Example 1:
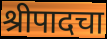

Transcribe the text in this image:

श्रीपादचा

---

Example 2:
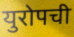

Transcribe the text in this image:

युरोपची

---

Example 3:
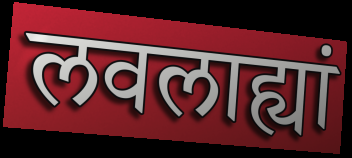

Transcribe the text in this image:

लवलाह्यां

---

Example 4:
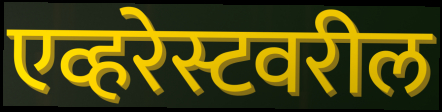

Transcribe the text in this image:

एव्हरेस्टवरील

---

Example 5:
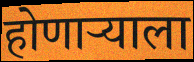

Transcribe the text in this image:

होणाऱ्याला